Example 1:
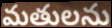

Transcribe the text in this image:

మతులను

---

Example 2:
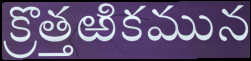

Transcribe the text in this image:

క్రొత్తఱికమున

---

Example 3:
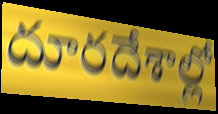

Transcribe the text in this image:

దూరదేశాల్లో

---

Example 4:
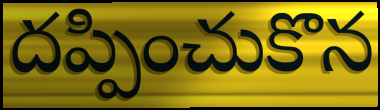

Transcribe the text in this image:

దప్పించుకొన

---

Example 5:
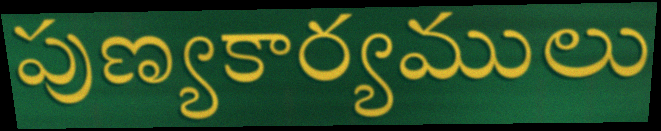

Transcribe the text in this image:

పుణ్యకార్యములు